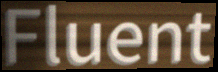
Fluent